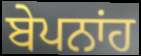
ਬੇਪਨਾਂਹ